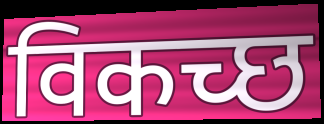
विकच्छ